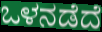
ಒಳನಡೆದೆ